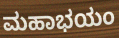
ಮಹಾಭಯಂ